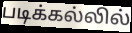
படிக்கல்லில்